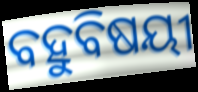
ବହୁବିଷୟୀ